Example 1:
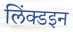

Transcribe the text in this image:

लिंक्डइन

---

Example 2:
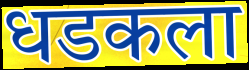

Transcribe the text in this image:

धडकला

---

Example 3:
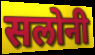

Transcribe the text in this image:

सलोनी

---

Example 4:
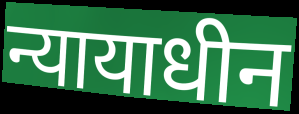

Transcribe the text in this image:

न्यायाधीन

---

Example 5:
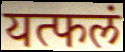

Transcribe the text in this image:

यत्फलं